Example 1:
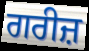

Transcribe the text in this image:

ਗਰੀਜ਼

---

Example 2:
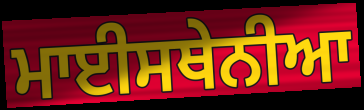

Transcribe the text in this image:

ਮਾਈਸਥੇਨੀਆ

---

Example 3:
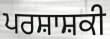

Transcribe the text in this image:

ਪਰਸ਼ਾਸ਼ਕੀ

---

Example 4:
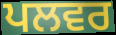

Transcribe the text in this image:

ਪਲਵਰ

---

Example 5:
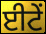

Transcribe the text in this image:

ਈਟੇਂ